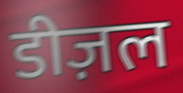
डीज़ल